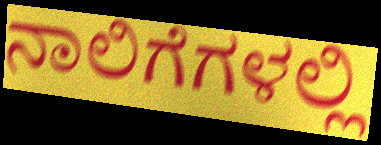
ನಾಲಿಗೆಗಳಲ್ಲಿ